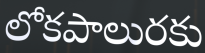
లోకపాలురకు